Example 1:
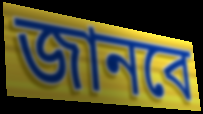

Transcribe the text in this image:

জানবে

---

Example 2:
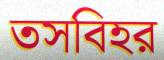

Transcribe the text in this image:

তসবিহর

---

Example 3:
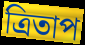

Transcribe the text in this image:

ত্রিতাপ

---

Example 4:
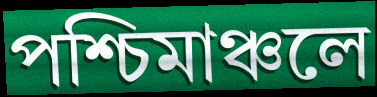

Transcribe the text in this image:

পশ্চিমাঞ্চলে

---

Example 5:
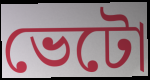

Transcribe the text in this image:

ভেটো